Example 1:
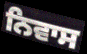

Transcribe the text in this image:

ਨਿਵਾਸ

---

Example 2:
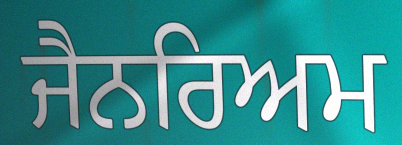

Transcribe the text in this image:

ਜੈਨਰਿਅਮ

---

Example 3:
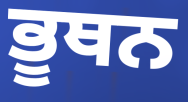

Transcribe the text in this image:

ਭੂਥਨ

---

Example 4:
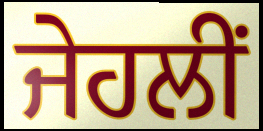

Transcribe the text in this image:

ਜੇਹਲੀਂ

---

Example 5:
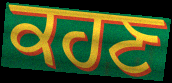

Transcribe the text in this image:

ਕਹਣ